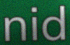
nid